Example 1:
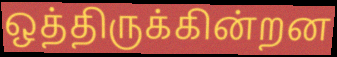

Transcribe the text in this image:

ஒத்திருக்கின்றன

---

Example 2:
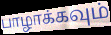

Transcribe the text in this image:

பாழாக்கவும்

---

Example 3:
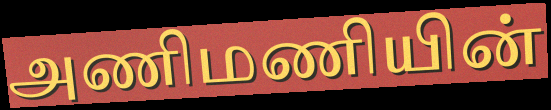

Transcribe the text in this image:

அணிமணியின்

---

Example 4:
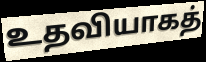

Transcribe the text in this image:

உதவியாகத்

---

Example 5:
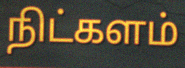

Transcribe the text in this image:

நிட்களம்